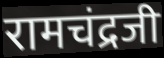
रामचंद्रजी